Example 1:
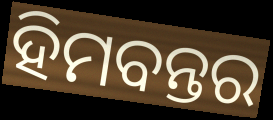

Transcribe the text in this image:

ହିମବନ୍ତର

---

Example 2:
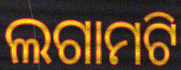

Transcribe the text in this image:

ଲଗାମଟି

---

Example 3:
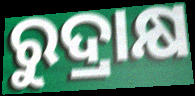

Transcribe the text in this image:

ରୁଦ୍ରାକ୍ଷ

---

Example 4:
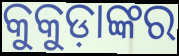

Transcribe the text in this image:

କୁକୁଡ଼ାଙ୍କର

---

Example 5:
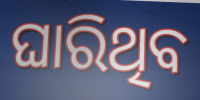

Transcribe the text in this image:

ଘାରିଥିବ